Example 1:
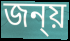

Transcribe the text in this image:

জন্য়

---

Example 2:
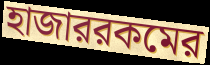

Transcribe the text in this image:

হাজাররকমের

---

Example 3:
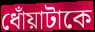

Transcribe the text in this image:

ধোঁয়াটাকে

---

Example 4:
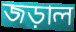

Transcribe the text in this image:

জড়াল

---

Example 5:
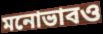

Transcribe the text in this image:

মনোভাবও